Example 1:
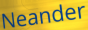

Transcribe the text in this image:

Neander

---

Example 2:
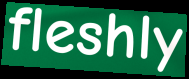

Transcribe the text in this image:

fleshly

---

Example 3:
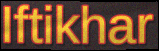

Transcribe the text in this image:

Iftikhar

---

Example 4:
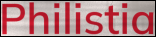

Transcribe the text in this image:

Philistia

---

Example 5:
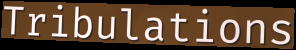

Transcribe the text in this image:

Tribulations